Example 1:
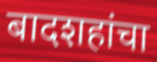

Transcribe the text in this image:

बादशहांचा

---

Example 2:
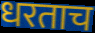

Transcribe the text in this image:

धरताच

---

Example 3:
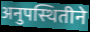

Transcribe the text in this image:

अनुपस्थितीने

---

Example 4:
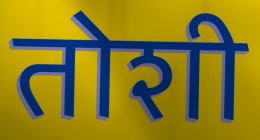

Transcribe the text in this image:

तोशी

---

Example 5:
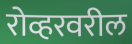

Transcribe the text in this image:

रोव्हरवरील